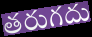
తరుగదు